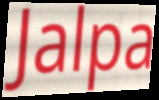
Jalpa